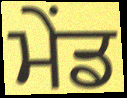
ਮੇਂਡ